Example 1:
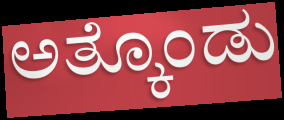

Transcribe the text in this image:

ಅತ್ಕೊಂಡು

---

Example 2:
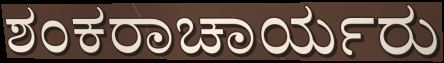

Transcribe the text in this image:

ಶಂಕರಾಚಾರ್ಯರು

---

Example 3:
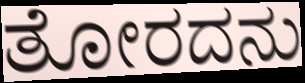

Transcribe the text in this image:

ತೋರದನು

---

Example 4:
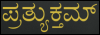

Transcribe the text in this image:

ಪ್ರತ್ಯುಕ್ತಮ್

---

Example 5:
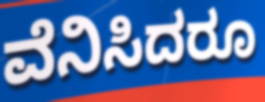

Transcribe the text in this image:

ವೆನಿಸಿದರೂ